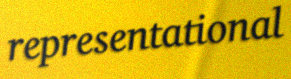
representational